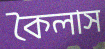
কৈলাস